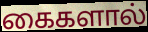
கைகளால்